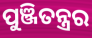
ପୁଞ୍ଜିତନ୍ତ୍ରର